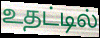
உதட்டில்